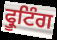
ਫ੍ਰੂਟਿੰਗ